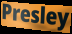
Presley